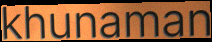
khunaman